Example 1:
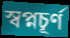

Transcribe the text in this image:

স্বপ্নচূর্ণ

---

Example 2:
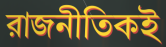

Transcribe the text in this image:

রাজনীতিকই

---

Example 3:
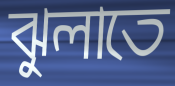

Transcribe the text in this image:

ঝুলাতে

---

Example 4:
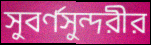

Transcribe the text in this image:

সুবর্ণসুন্দরীর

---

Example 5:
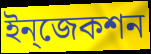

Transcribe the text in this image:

ইন্‌জেকশন